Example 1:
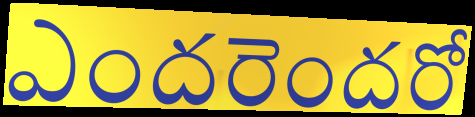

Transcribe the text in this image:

ఎందరెందరో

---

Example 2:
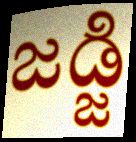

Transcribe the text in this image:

జడ్జి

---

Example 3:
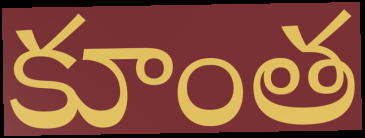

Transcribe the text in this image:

కూంత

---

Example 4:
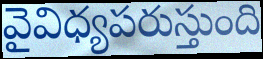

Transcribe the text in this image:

వైవిధ్యపరుస్తుంది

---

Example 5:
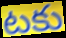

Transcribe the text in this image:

టకు